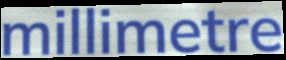
millimetre